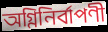
অগ্নিনির্বাপণী